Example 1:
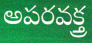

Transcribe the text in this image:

అపరవక్త్ర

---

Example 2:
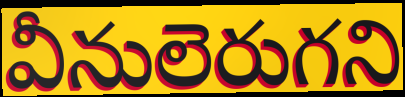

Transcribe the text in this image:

వీనులెరుగని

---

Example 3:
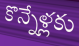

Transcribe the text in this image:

కొన్నేళ్లకు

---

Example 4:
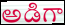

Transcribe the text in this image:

అడిగా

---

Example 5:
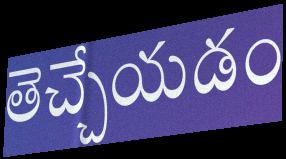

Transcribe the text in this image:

తెచ్చేయడం